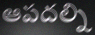
ఆపదల్ని